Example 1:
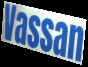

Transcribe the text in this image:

Vassan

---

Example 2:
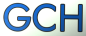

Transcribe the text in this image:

GCH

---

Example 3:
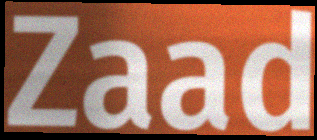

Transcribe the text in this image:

Zaad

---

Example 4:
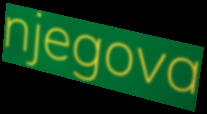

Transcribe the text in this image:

njegova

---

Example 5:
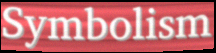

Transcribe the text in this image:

Symbolism